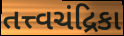
તત્ત્વચંદ્રિકા